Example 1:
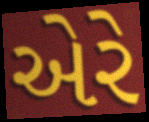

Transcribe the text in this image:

એરે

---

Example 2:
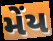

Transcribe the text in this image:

મેંય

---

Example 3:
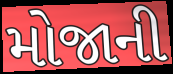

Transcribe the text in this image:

મોજાની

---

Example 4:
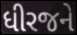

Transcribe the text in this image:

ધીરજને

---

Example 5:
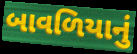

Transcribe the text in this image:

બાવળિયાનું